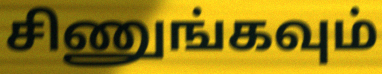
சிணுங்கவும்